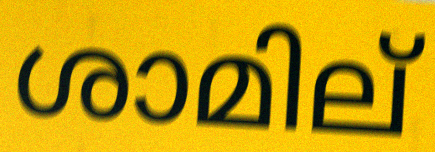
ശാമില്